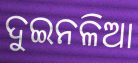
ଦୁଇନଳିଆ